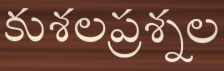
కుశలప్రశ్నల